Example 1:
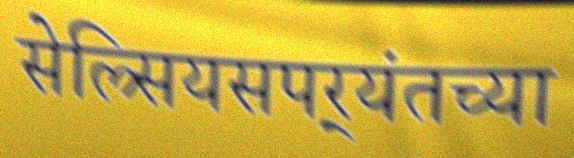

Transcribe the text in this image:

सेल्सियसपर्यंतच्या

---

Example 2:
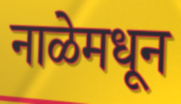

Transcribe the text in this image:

नाळेमधून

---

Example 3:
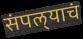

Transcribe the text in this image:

संपल्याचं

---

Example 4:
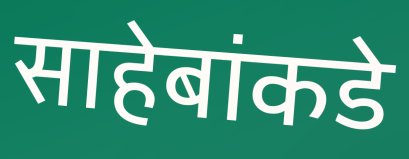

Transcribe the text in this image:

साहेबांकडे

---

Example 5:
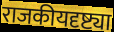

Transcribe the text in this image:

राजकीयदृष्ट्या